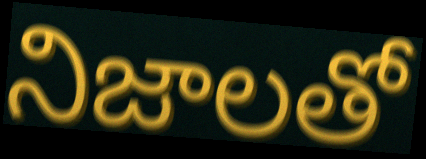
నిజాలతో